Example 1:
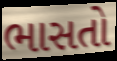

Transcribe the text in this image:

ભાસતો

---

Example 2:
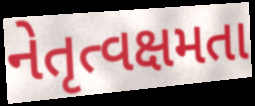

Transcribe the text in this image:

નેતૃત્વક્ષમતા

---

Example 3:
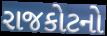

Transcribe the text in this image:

રાજકોટનો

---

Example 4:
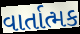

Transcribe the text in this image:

વાર્તાત્મક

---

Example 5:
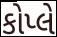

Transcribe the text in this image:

કોપ્લે